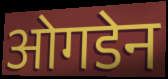
ओगडेन